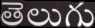
తెలుగు